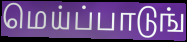
மெய்ப்பாடுங்